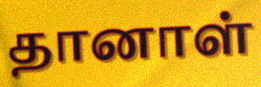
தானாள்